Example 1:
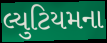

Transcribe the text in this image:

લ્યુટિયમના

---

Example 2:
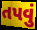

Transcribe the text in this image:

તપવું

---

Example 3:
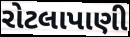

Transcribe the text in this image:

રોટલાપાણી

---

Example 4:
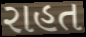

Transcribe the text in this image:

રાહત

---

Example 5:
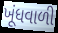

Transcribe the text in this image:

ખૂંધવાળી